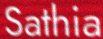
Sathia